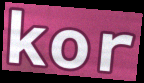
kor